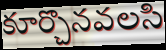
కూర్చొనవలసి